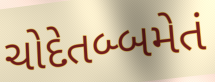
ચોદેતબ્બમેતં